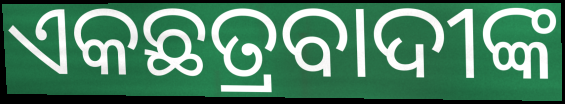
ଏକଛତ୍ରବାଦୀଙ୍କ